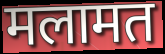
मलामत